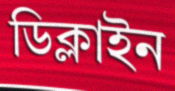
ডিক্লাইন